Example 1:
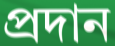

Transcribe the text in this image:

প্রদান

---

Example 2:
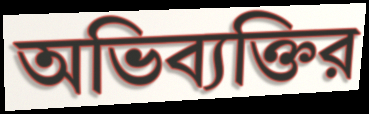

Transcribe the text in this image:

অভিব্যক্তির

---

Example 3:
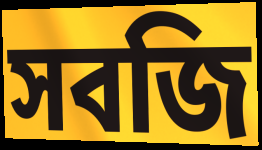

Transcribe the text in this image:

সবজি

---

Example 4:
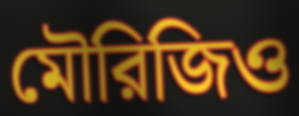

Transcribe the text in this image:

মৌরিজিও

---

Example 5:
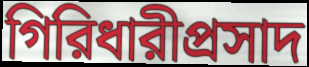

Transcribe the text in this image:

গিরিধারীপ্রসাদ